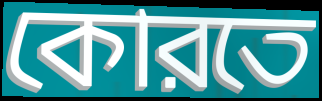
কোরতে